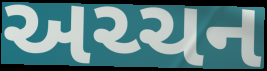
અચ્ચન